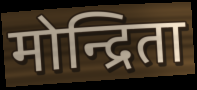
मोन्द्रिता